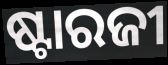
ଷ୍ଟାରଜୀ